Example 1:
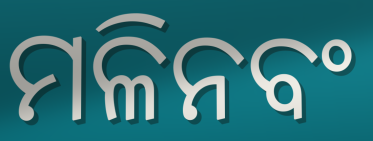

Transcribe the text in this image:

ମଳିନବଂ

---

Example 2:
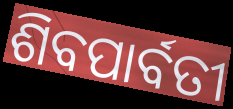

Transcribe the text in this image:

ଶିବପାର୍ବତୀ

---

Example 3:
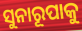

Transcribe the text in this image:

ସୁନାରୂପାକୁ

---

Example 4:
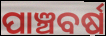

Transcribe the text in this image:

ପାଞ୍ଚବର୍ଷ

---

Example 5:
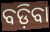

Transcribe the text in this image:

ବଡ଼ିବା